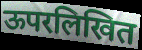
ऊपरलिखित